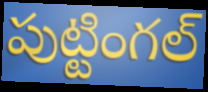
పుట్టింగల్